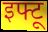
इफ्टू